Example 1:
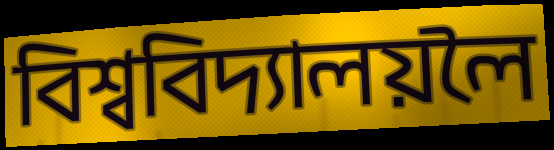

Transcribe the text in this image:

বিশ্ববিদ্যালয়লৈ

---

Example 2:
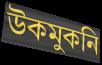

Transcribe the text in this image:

উকমুকনি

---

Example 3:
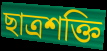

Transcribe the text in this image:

ছাত্ৰশক্তি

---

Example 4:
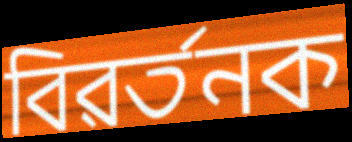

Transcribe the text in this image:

বিৱৰ্তনক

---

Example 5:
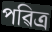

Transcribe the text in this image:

পৱিত্ৰ